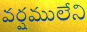
వర్షములేని